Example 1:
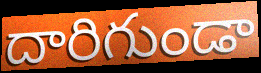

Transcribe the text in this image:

దారిగుండా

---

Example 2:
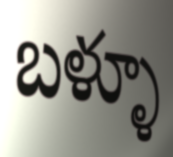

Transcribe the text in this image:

బళ్ళూ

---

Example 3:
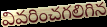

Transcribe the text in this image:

వివరించగలిగిన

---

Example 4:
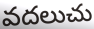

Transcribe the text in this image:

వదలుచు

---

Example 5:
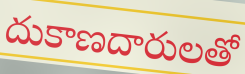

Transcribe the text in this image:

దుకాణదారులతో